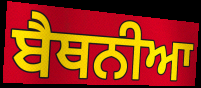
ਬੈਥਨੀਆ